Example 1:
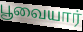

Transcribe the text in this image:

பூவையார்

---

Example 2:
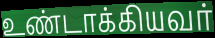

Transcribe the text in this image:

உண்டாக்கியவர்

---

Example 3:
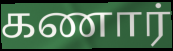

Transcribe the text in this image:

கணார்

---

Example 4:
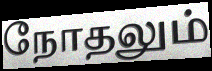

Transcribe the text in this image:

நோதலும்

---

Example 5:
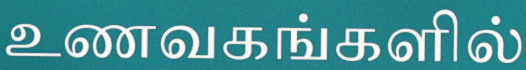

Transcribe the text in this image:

உணவகங்களில்